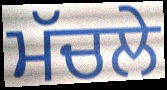
ਮੱਚਲੇ